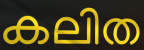
കലിത